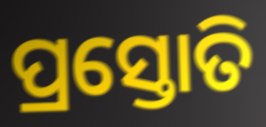
ପ୍ରସ୍ତୋତି